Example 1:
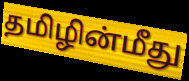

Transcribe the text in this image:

தமிழின்மீது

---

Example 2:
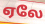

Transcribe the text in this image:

ஏலே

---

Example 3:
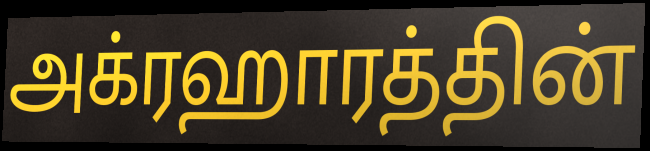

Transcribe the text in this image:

அக்ரஹாரத்தின்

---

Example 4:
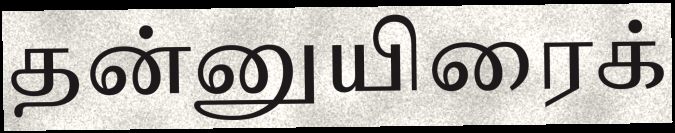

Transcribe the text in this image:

தன்னுயிரைக்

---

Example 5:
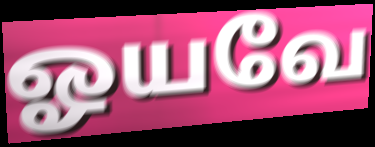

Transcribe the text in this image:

ஓயவே